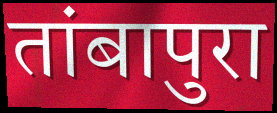
तांबापुरा